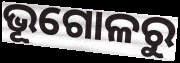
ଭୂଗୋଳରୁ